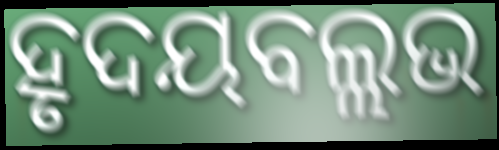
ହୃଦୟବଲ୍ଲଭ